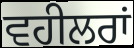
ਵਹੀਲਰਾਂ